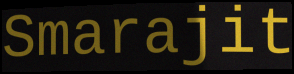
Smarajit